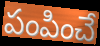
పంపించే